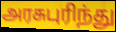
அரசுபுரிந்து